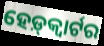
ହେଡ଼୍‌କ୍ୱାର୍ଟର